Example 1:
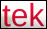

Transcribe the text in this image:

tek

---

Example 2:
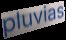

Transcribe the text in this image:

pluvias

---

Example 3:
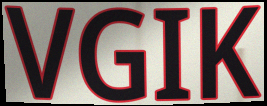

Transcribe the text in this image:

VGIK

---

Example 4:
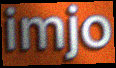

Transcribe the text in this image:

imjo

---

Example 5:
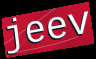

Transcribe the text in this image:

jeev